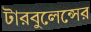
টারবুলেন্সের